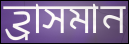
হ্ৰাসমান